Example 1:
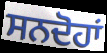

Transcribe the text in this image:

ਸਨਦੋਹਾਂ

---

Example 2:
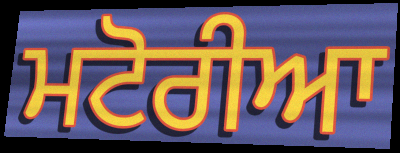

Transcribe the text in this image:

ਮਟੋਰੀਆ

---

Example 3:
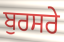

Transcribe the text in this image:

ਬੁਰਸਰੇ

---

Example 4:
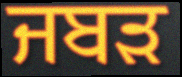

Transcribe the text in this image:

ਜਬੜ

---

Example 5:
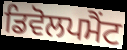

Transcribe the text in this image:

ਡਿਵੋਲਪਮੈਂਟ